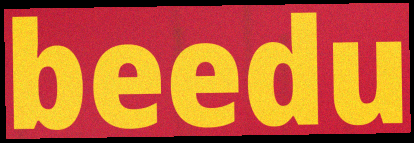
beedu